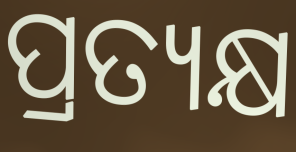
ପ୍ରତ୍ୟକ୍ଷ